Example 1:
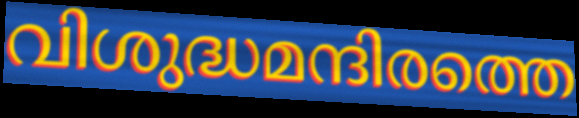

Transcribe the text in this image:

വിശുദ്ധമന്ദിരത്തെ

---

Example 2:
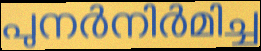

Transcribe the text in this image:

പുനർനിർമിച്ച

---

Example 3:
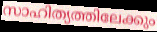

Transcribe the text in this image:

സാഹിത്യത്തിലേക്കും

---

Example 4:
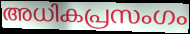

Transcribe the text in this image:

അധികപ്രസംഗം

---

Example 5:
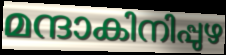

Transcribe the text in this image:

മന്ദാകിനിപ്പുഴ